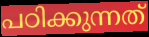
പഠിക്കുന്നത്